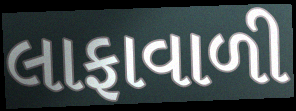
લાફાવાળી